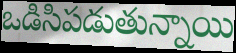
ఒడిసిపడుతున్నాయి